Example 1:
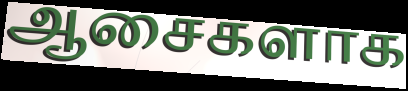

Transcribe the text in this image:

ஆசைகளாக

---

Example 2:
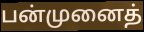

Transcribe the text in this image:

பன்முனைத்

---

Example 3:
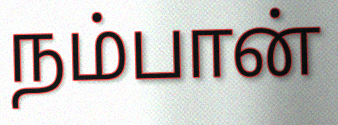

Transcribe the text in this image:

நம்பான்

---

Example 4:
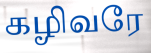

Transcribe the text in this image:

கழிவரே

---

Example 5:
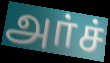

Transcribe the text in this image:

அர்ச்